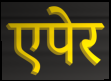
एपेर